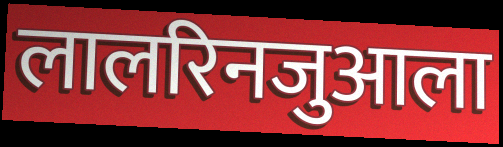
लालरिनजुआला